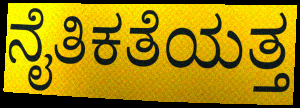
ನೈತಿಕತೆಯತ್ತ